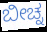
ಬೀಚ್ನ